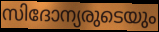
സിദോന്യരുടെയും